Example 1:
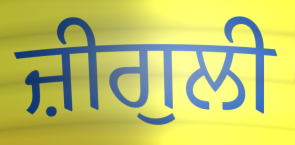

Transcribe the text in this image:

ਜ਼ੀਗੁਲੀ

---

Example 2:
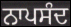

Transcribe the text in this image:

ਨਾਪਸੰਦ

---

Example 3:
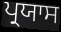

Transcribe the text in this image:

ਪ੍ਰਯਾਸ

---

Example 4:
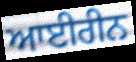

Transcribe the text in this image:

ਆਈਰੀਨ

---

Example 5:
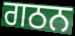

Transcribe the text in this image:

ਗਠਨ